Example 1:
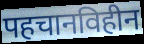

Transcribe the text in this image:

पहचानविहीन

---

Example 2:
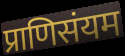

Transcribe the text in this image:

प्राणिसंयम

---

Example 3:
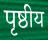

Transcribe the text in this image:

पृष्ठीय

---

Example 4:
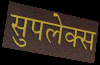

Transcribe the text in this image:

सुपलेक्स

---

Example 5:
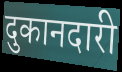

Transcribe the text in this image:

दुकानदारी